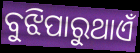
ବୁଝିପାରୁଥାଏଁ